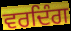
ਵਰਦਿੰਗ